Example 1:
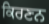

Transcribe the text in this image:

ਕਿਰਣਨ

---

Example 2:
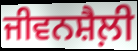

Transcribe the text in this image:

ਜੀਵਨਸ਼ੈਲ਼ੀ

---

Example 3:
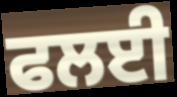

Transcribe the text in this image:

ਫਲਈ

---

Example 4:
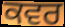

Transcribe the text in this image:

ਕਵਰ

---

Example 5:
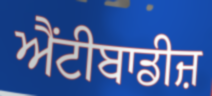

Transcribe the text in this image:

ਐਂਟੀਬਾਡੀਜ਼